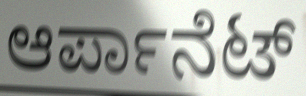
ಆರ್ಪಾನೆಟ್